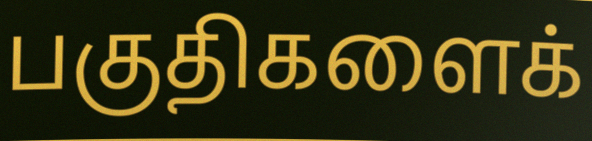
பகுதிகளைக்